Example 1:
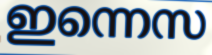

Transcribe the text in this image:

ഇന്നെസ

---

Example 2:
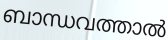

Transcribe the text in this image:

ബാന്ധവത്താൽ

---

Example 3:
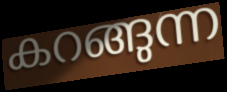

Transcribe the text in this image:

കറങ്ങുന്ന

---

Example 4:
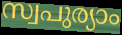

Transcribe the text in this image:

സ്വപുര്യാം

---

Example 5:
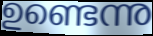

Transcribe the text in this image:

ഉണ്ടെന്നു